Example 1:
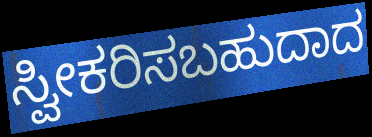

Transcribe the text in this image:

ಸ್ವೀಕರಿಸಬಹುದಾದ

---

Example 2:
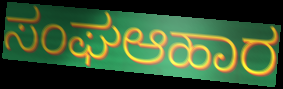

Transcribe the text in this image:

ಸಂಘಆಹಾರ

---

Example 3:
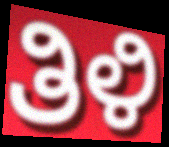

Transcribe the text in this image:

ತಿಳಿ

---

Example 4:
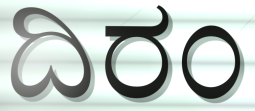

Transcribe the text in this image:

ದಿರಂ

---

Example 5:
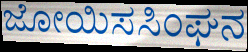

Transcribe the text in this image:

ಜೋಯಿಸಸಿಂಘನ